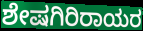
ಶೇಷಗಿರಿರಾಯರ